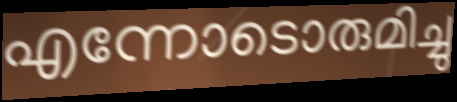
എന്നോടൊരുമിച്ചു